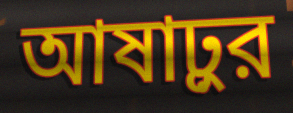
আষাঢ়ুর